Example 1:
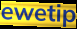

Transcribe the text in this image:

ewetip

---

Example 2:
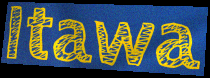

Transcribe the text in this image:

Itawa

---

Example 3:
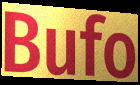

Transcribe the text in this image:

Bufo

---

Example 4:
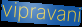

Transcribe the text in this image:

vipravani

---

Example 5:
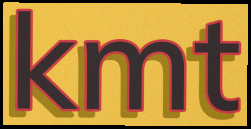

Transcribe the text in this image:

kmt